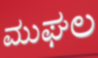
ಮುಘಲ